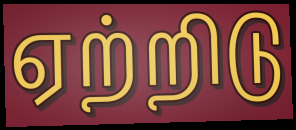
ஏற்றிடு